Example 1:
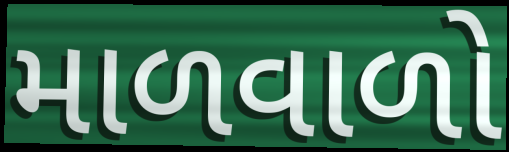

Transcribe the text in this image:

માળવાળો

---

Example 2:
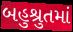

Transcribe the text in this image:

બહુશ્રુતમાં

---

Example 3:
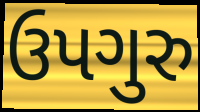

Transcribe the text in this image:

ઉપગુરુ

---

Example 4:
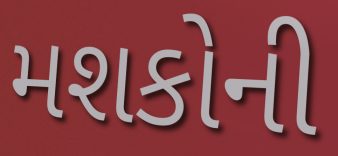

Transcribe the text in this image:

મશકોની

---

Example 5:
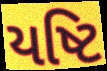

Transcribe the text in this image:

યષ્ટિ